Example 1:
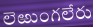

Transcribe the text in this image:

లెఱుంగలేరు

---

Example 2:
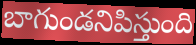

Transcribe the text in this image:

బాగుండనిపిస్తుంది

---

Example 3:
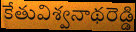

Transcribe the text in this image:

కేతువిశ్వనాథరెడ్డి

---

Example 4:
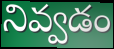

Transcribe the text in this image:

నివ్వడం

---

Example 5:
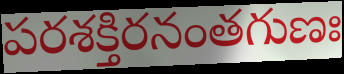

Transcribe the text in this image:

పరశక్తిరనంతగుణః